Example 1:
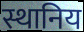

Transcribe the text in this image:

स्थानिय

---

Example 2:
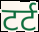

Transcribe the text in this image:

टर्ट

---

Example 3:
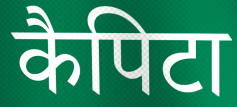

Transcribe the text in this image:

कैपिटा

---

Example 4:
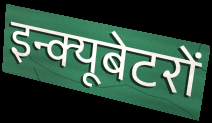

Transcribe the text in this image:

इन्क्यूबेटरों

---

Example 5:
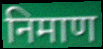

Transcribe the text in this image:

निमाण